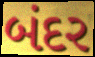
બંદર